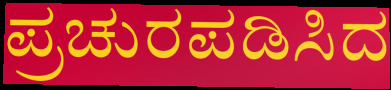
ಪ್ರಚುರಪಡಿಸಿದ